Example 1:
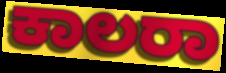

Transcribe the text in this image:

ಕಾಲರಾ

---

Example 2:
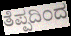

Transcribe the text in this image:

ತೆಪ್ಪದಿಂದ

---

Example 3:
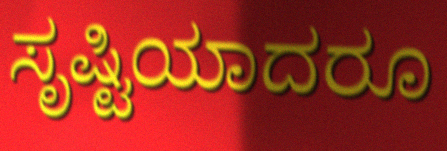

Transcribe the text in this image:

ಸೃಷ್ಟಿಯಾದರೂ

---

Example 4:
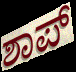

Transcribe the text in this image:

ಶಾಪ್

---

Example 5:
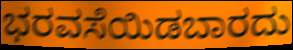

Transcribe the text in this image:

ಭರವಸೆಯಿಡಬಾರದು